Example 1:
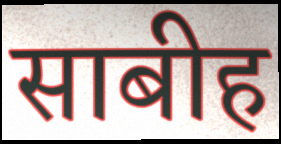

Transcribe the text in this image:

साबीह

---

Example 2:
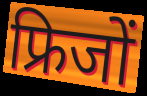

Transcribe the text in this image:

फ्रिजों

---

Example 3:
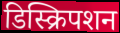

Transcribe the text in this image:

डिस्क्रिपशन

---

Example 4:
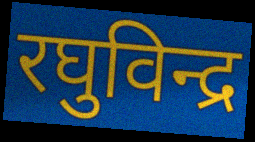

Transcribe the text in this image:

रघुविन्द्र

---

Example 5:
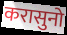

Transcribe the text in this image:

करासुनो